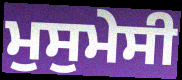
ਮੁਸੁਮੇਸੀ